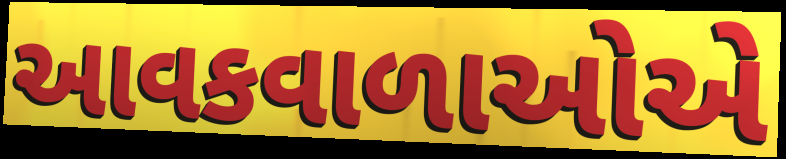
આવકવાળાઓએ